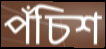
পঁচিশ